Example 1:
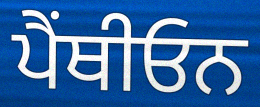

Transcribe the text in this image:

ਪੈਂਥੀਓਨ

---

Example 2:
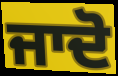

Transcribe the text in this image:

ਜਾਦੋ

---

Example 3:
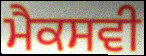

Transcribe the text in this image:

ਮੈਕਸਵੀ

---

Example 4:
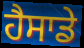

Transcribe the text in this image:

ਹੈਸਾਡੇ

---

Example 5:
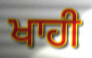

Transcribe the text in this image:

ਖਾਹੀ